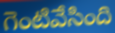
గెంటివేసింది